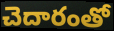
చెదారంతో